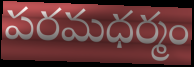
పరమధర్మం